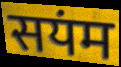
सयंम